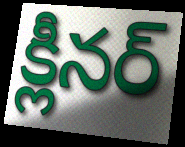
క్లీనర్